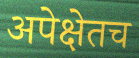
अपेक्षेतच